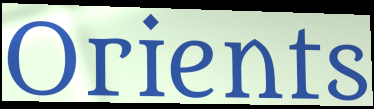
Orients